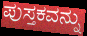
ಪುಸ್ತಕವನ್ನು